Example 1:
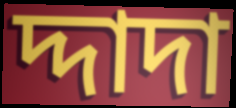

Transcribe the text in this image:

দ্দাদা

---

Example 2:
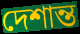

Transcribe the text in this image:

দেশান্ত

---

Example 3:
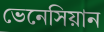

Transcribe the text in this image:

ভেনেসিয়ান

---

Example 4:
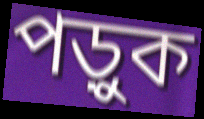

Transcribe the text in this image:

পড়ুক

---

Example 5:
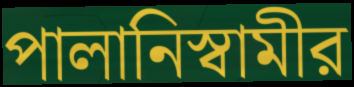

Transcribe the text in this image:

পালানিস্বামীর